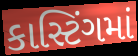
કાસ્ટિંગમાં